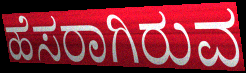
ಹೆಸರಾಗಿರುವ